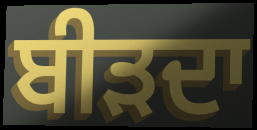
ਬੀੜਦਾ